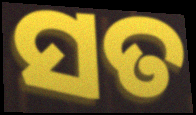
ସତ